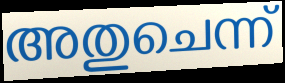
അതുചെന്ന്